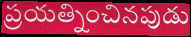
ప్రయత్నించినపుడు